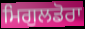
ਮਿਗੁਲਡੋਰਾ